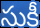
సుకీ